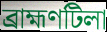
ব্রাহ্মণটিলা